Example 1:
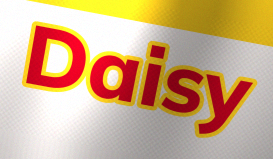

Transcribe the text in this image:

Daisy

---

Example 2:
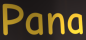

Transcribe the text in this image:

Pana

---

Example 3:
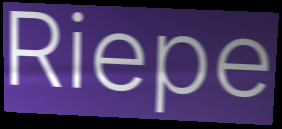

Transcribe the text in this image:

Riepe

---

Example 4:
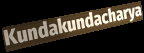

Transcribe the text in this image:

Kundakundacharya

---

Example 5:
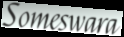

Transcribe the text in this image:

Someswara